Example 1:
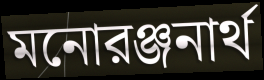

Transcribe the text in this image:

মনোরঞ্জনার্থ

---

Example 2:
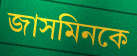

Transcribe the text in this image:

জাসমিনকে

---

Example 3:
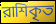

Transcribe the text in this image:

রাশিকৃত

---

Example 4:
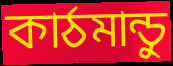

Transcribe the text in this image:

কাঠমান্ডু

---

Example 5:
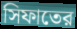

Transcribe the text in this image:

সিফাতের